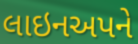
લાઇનઅપને